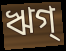
ঋগ্